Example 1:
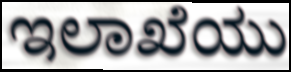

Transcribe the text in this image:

ಇಲಾಖೆಯು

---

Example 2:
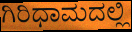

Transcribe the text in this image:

ಗಿರಿಧಾಮದಲ್ಲಿ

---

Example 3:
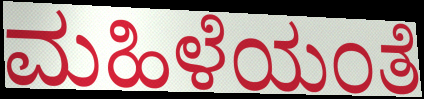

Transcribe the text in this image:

ಮಹಿಳೆಯಂತೆ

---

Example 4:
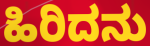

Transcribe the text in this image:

ಹಿರಿದನು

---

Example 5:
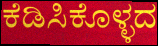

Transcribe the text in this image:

ಕೆಡಿಸಿಕೊಳ್ಳದ